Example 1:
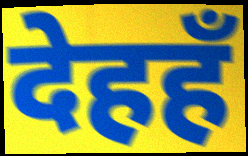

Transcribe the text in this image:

देहहँ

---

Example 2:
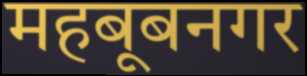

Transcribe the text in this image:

महबूबनगर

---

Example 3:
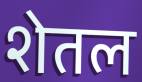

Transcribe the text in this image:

शेतल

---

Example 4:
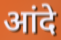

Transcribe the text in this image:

आंदे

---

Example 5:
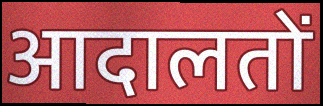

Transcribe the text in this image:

आदालतों